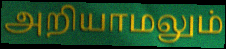
அறியாமலும்